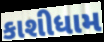
કાશીધામ